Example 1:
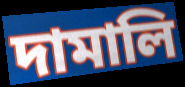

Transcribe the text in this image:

দামালি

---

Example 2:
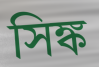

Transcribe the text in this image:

সিঙ্ক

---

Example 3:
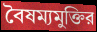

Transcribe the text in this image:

বৈষম্যমুক্তির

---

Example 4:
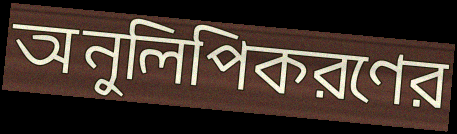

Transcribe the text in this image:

অনুলিপিকরণের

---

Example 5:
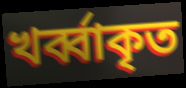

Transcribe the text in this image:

খর্ব্বাকৃত